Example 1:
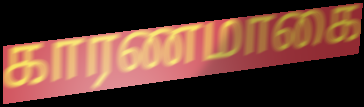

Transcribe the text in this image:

காரணமாகை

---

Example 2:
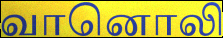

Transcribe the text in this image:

வானொலி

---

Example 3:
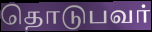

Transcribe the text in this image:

தொடுபவர்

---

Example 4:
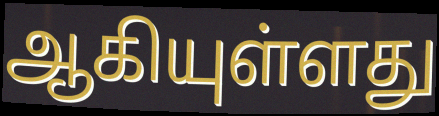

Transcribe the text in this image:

ஆகியுள்ளது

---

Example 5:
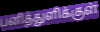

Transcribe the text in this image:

பனித்துளிக்குள்